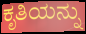
ಕೃತಿಯನ್ನು